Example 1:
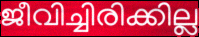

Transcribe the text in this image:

ജീവിച്ചിരിക്കില്ല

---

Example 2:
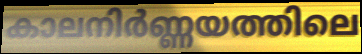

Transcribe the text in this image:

കാലനിർണ്ണയത്തിലെ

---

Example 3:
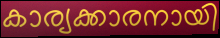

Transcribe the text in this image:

കാര്യക്കാരനായി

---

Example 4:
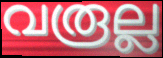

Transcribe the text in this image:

വരൂല്ല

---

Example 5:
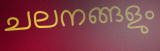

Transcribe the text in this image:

ചലനങ്ങളും